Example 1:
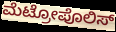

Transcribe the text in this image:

ಮೆಟ್ರೋಪೊಲಿಸ್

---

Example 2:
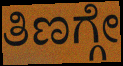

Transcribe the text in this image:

ತಿಣಗ್ಗೇ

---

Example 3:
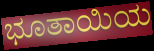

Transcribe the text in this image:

ಭೂತಾಯಿಯ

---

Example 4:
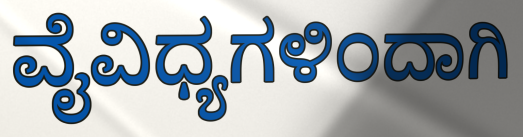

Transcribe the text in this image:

ವೈವಿಧ್ಯಗಳಿಂದಾಗಿ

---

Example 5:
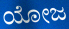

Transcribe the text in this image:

ಯೋಜ